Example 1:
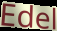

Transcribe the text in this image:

Edel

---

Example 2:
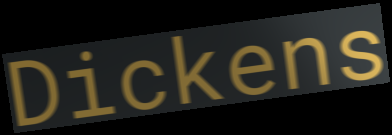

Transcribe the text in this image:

Dickens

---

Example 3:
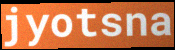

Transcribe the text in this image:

jyotsna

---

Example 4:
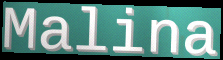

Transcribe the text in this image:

Malina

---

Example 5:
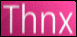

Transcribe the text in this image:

Thnx